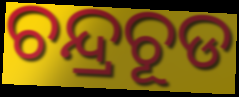
ଚନ୍ଦ୍ରଚୂଡ